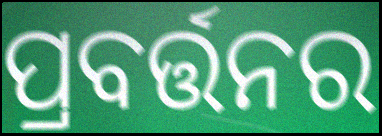
ପ୍ରବର୍ତ୍ତନର